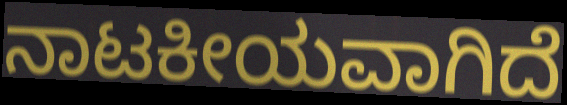
ನಾಟಕೀಯವಾಗಿದೆ